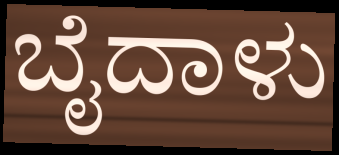
ಬೈದಾಳು